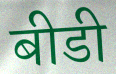
बीडी